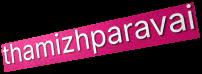
thamizhparavai